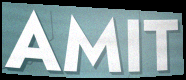
AMIT